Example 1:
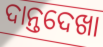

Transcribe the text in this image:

ଦାନ୍ତଦେଖା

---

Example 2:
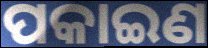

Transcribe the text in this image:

ପକାଇଣ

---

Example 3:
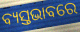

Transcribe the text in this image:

ବ୍ୟସ୍ତଭାବରେ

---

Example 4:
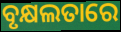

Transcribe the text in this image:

ବୃକ୍ଷଲତାରେ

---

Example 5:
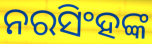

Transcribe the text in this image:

ନରସିଂହଙ୍କ